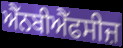
ਐੱਨਬੀਐੱਫਸੀਜ਼